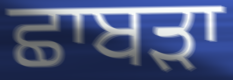
ਛਾਬੜਾ